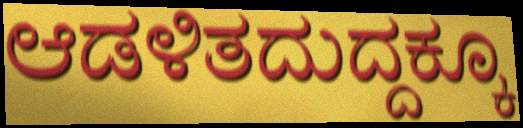
ಆಡಳಿತದುದ್ದಕ್ಕೂ